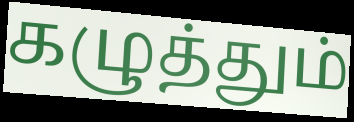
கழுத்தும்